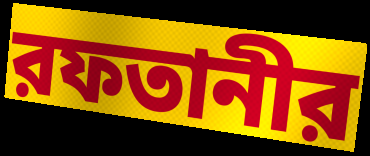
রফতানীর